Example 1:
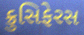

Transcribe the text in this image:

ક્રુસિફેરસ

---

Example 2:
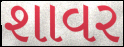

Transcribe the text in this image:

શાવર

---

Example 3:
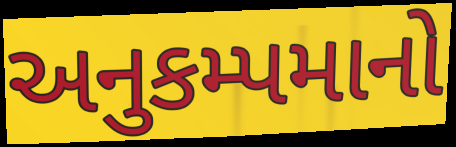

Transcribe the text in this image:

અનુકમ્પમાનો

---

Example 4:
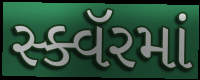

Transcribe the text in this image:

સ્ક્વૅરમાં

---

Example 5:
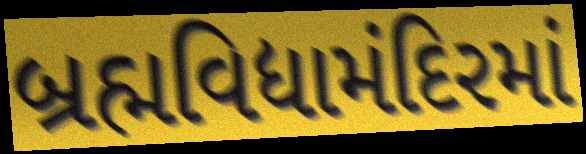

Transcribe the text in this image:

બ્રહ્મવિદ્યામંદિરમાં